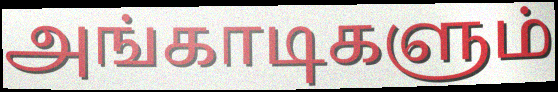
அங்காடிகளும்